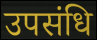
उपसंधि